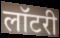
लॉटरी